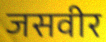
जसवीर